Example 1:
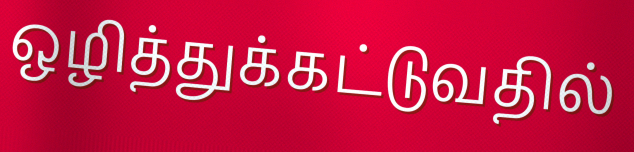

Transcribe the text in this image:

ஒழித்துக்கட்டுவதில்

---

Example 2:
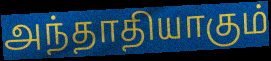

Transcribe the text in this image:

அந்தாதியாகும்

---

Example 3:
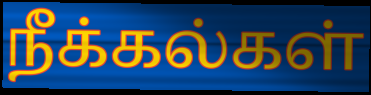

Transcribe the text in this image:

நீக்கல்கள்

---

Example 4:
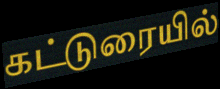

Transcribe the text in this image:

கட்டுரையில்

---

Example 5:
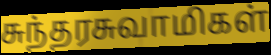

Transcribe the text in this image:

சுந்தரசுவாமிகள்